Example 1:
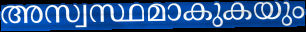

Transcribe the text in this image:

അസ്വസ്ഥമാകുകയും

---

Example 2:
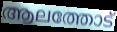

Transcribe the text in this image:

ആലത്തോട്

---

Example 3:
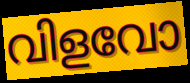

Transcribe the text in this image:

വിളവോ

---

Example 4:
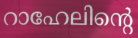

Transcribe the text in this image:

റാഹേലിന്റെ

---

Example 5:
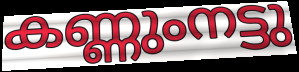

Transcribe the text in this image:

കണ്ണുംനട്ടു